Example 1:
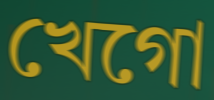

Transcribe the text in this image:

খেগো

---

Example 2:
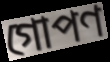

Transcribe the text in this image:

গোপণ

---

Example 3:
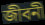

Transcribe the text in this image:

জীবনী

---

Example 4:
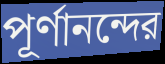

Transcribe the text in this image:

পূর্ণানন্দের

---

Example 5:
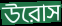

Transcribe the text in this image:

উরোস